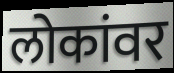
लोकांवर